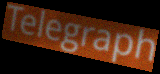
Telegraph